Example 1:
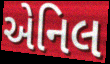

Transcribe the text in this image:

એનિલ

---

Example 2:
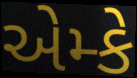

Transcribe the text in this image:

એમ્કે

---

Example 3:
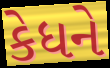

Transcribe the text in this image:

કેધને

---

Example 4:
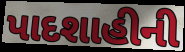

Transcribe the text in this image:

પાદશાહીની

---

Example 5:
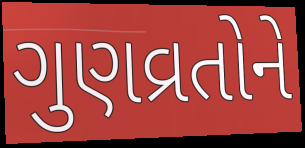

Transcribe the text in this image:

ગુણવ્રતોને